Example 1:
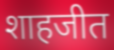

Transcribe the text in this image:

शाहजीत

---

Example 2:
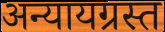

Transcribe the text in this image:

अन्यायग्रस्त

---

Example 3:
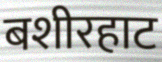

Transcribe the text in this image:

बशीरहाट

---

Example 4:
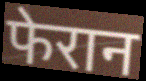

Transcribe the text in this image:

फेरान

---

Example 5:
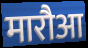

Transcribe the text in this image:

मारौआ